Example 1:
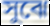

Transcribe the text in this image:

সুঝে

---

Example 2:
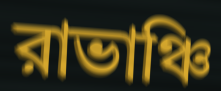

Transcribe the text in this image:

রাভাঞ্চি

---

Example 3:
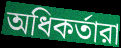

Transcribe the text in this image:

অধিকর্তারা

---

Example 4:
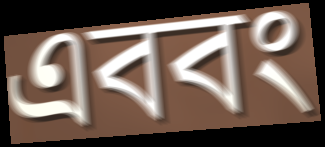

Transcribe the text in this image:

এববং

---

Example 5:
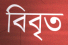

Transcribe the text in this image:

বিবৃত